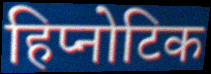
हिप्नोटिक